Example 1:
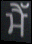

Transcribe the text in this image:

ਮੈੱ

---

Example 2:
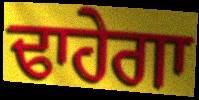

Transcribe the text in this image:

ਢਾਹੇਗਾ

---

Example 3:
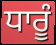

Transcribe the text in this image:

ਧਾਰੂੰ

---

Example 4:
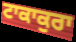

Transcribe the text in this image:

ਟਾਕਾਕੁਰਾ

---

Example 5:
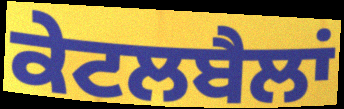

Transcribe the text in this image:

ਕੇਟਲਬੈਲਾਂ